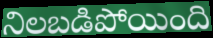
నిలబడిపోయింది